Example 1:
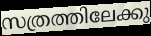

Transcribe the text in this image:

സത്രത്തിലേക്കു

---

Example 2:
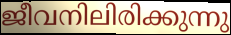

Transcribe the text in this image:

ജീവനിലിരിക്കുന്നു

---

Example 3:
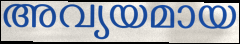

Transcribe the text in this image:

അവ്യയമായ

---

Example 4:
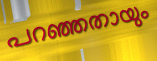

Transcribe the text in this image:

പറഞ്ഞതായും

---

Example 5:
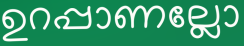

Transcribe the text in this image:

ഉറപ്പാണല്ലോ